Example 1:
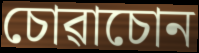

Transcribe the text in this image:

চোৱাচোন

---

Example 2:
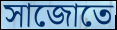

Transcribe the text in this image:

সাজোতে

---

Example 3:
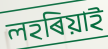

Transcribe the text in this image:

লহৰিয়াই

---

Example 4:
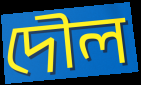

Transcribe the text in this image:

দৌল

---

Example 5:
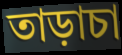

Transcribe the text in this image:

তাড়াচা